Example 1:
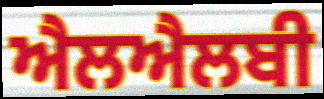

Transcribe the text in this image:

ਐਲਐਲਬੀ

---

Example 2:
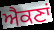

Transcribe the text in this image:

ਐਕਣਾਂ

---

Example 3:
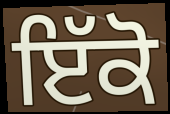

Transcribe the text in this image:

ਇੱਕੋ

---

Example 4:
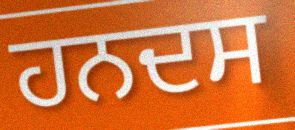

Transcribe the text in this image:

ਹਨਦਸ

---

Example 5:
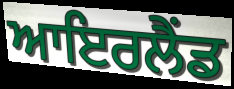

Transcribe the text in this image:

ਆਇਰਲੈਂਡ